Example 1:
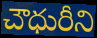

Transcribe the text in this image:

చౌధురీని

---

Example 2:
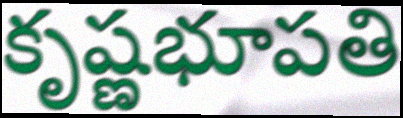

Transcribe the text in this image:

కృష్ణభూపతి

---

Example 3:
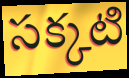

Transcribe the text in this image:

సక్కటి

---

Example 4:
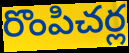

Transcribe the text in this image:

రొంపిచర్ల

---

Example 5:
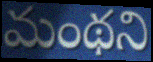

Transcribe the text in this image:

మంథని